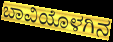
ಬಾವಿಯೊಳಗಿನ